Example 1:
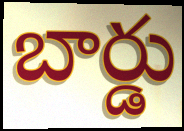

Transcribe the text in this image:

బార్డు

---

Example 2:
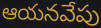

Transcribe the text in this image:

ఆయనవేపు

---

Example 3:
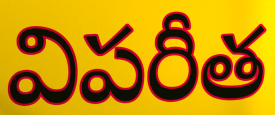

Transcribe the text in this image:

విపరీత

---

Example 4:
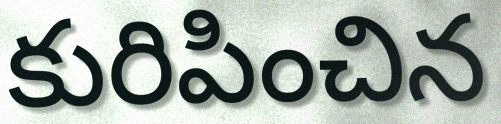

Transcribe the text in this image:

కురిపించిన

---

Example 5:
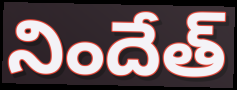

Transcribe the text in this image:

నిందేత్